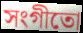
সংগীতো